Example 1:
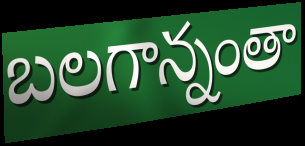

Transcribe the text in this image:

బలగాన్నంతా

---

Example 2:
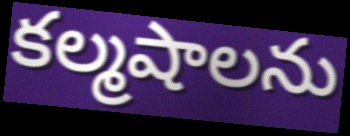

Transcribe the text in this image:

కల్మషాలను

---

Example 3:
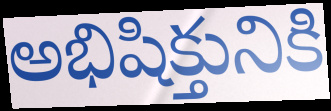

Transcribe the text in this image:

అభిషిక్తునికి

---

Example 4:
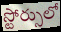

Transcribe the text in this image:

స్టోర్సులో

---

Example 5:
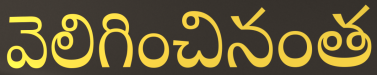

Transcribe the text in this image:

వెలిగించినంత